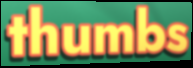
thumbs